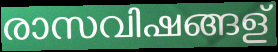
രാസവിഷങ്ങള്